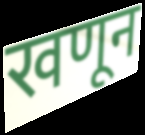
खणून